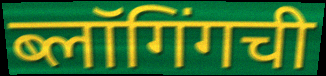
ब्लॉगिंगची